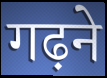
गढ़ने